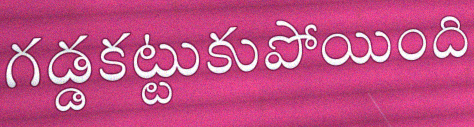
గడ్డకట్టుకుపోయింది